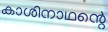
കാശിനാഥന്റെ